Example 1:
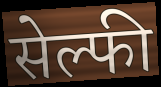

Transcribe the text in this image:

सेल्फी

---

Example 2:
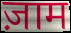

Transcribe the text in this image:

ज़ाम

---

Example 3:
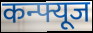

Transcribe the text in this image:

कन्फ्यूज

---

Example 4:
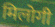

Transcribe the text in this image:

मिलोगी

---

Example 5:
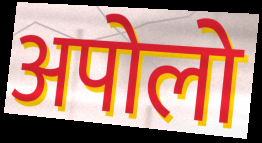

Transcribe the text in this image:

अपोलो